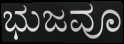
ಭುಜವೂ